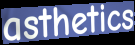
asthetics